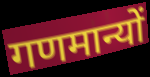
गणमान्यों